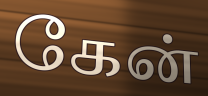
கேன்